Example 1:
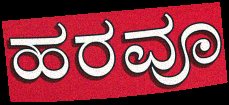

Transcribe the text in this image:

ಹರವೂ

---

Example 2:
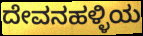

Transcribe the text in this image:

ದೇವನಹಳ್ಳಿಯ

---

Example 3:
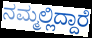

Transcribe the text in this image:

ನಮ್ಮಲ್ಲಿದ್ದಾರೆ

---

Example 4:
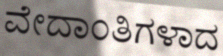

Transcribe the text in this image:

ವೇದಾಂತಿಗಳಾದ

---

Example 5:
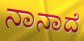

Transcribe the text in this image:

ನಾನಾದೆ